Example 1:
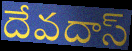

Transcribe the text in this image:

దేవదాస్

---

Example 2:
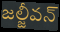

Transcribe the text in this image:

జల్జీవన్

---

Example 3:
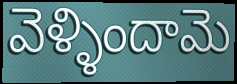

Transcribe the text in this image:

వెళ్ళిందామె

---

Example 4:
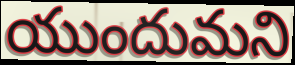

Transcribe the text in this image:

యుందుమని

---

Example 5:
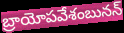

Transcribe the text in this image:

బ్రాయోపవేశంబునన్